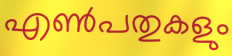
എൺപതുകളും